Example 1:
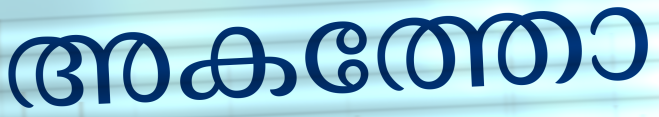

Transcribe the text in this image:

അകത്തോ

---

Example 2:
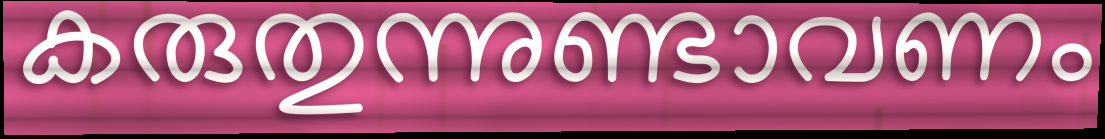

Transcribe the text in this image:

കരുതുന്നുണ്ടാവണം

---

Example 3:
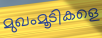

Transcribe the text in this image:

മുഖംമൂടികളെ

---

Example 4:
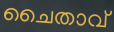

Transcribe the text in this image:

ചൈതാവ്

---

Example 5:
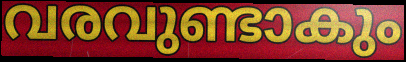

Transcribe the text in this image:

വരവുണ്ടാകും